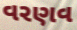
વરણવ